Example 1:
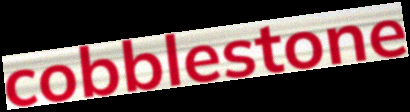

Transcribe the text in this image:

cobblestone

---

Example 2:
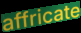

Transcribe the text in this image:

affricate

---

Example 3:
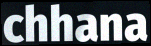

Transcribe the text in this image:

chhana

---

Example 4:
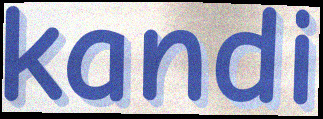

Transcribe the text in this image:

kandi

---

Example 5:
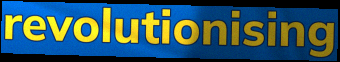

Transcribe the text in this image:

revolutionising